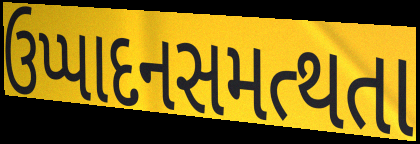
ઉપ્પાદનસમત્થતા